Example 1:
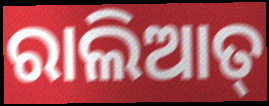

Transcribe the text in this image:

ରାଲିଆତ୍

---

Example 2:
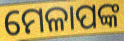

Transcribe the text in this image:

ମେଳାପଙ୍କ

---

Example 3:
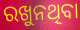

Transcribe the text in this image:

ରଖୁନଥିବା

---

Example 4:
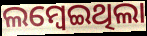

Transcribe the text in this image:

ଲମ୍ବେଇଥିଲା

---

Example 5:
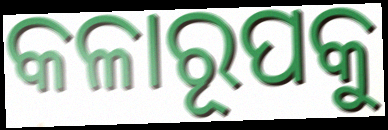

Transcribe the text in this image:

କଳାରୂପକୁ